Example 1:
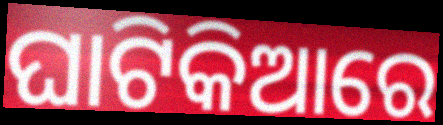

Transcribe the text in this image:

ଘାଟିକିଆରେ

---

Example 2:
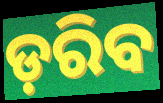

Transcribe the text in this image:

ଡ଼ରିବ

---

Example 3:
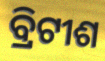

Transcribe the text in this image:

ବ୍ରିଟୀଶ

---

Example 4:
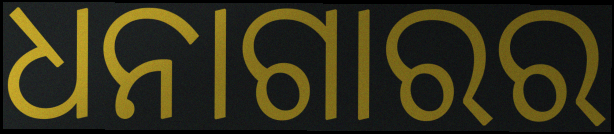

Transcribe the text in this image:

ଧନାଗାରର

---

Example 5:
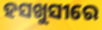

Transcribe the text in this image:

ହସଖୁସୀରେ